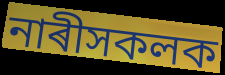
নাৰীসকলক